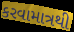
કરવામાત્રથી